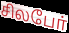
சிலபேர்